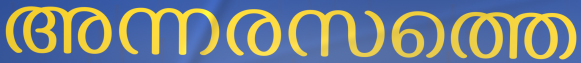
അന്നരസത്തെ